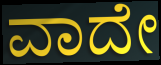
ವಾದೇ